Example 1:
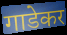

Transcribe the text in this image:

गाडेकर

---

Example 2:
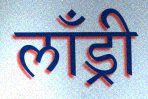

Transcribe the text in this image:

लॉंड्री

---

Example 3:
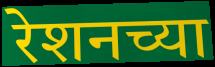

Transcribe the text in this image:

रेशनच्या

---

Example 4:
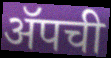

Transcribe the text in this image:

ॲपची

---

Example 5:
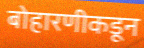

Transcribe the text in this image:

बोहारणीकडून